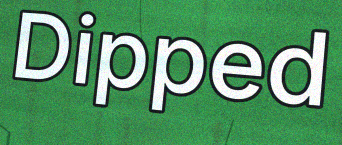
Dipped